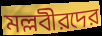
মল্লবীরদের